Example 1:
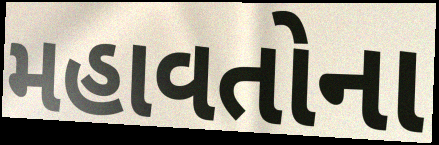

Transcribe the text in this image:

મહાવતોના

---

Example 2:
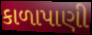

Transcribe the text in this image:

કાળાપાણી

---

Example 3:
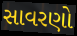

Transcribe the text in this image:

સાવરણો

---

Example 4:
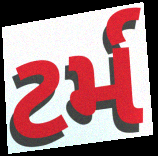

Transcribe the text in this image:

ટર્મ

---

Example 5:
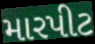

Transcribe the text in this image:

મારપીટ